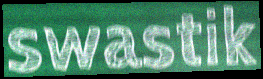
swastik